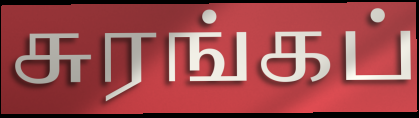
சுரங்கப்